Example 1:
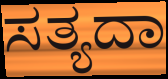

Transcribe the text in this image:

ಸತ್ಯದಾ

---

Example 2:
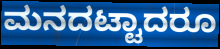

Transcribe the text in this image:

ಮನದಟ್ಟಾದರೂ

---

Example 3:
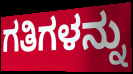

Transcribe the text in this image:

ಗತಿಗಳನ್ನು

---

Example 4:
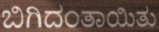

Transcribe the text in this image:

ಬಿಗಿದಂತಾಯಿತು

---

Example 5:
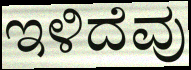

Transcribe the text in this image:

ಇಳಿದೆವು